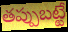
తప్పుబట్టే